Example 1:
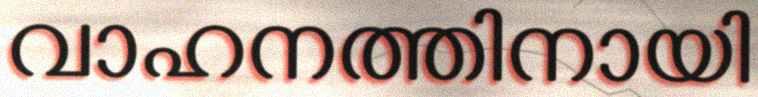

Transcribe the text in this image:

വാഹനത്തിനായി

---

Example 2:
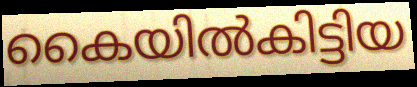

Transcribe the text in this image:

കൈയിൽകിട്ടിയ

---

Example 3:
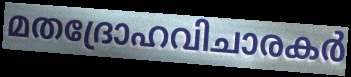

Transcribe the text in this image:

മതദ്രോഹവിചാരകർ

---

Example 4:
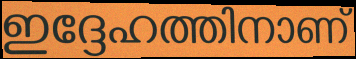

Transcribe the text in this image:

ഇദ്ദേഹത്തിനാണ്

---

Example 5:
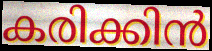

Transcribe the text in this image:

കരിക്കിൻ